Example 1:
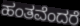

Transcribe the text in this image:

ಹಂತವೆಂದರೆ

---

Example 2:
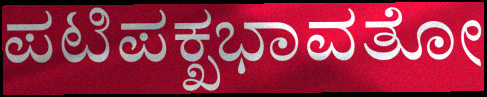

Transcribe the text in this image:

ಪಟಿಪಕ್ಖಭಾವತೋ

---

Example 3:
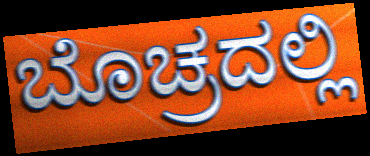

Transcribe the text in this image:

ಬೊಚ್ರದಲ್ಲಿ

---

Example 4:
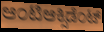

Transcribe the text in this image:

ಆಂಟಿಆಕ್ಸಿಡೆಂಟ್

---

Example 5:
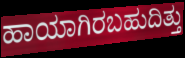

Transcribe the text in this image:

ಹಾಯಾಗಿರಬಹುದಿತ್ತು